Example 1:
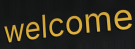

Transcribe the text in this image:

welcome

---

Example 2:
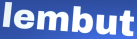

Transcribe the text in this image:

lembut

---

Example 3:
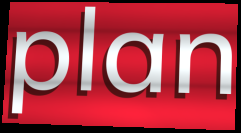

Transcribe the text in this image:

plan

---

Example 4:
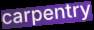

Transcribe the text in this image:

carpentry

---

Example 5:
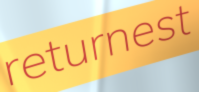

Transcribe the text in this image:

returnest